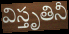
విస్తృతినీ